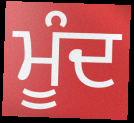
ਮੂੰਦ